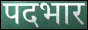
पदभार